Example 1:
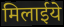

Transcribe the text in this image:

मिलाईये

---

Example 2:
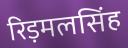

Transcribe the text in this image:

रिड़मलसिंह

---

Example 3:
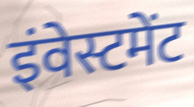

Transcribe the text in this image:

इंवेस्टमेंट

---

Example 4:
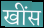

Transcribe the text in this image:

खींस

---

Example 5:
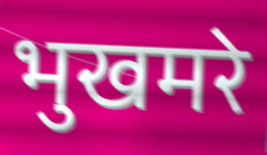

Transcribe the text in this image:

भुखमरे